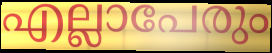
എല്ലാപേരും